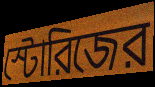
স্টোরিজের